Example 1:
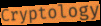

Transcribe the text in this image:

Cryptology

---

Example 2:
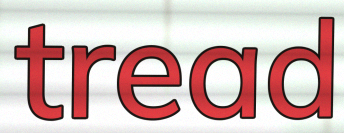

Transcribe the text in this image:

tread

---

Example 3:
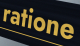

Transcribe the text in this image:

ratione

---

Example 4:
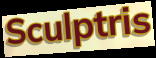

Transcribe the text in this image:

Sculptris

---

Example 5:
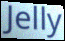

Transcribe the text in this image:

Jelly